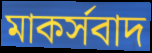
মাকর্সবাদ